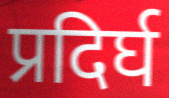
प्रदिर्घ